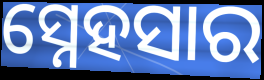
ସ୍ନେହସାର